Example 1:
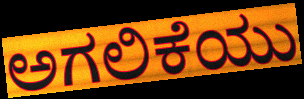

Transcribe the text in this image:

ಅಗಲಿಕೆಯು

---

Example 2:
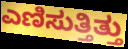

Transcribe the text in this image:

ಎಣಿಸುತ್ತಿತ್ತು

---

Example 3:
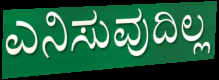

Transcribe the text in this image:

ಎನಿಸುವುದಿಲ್ಲ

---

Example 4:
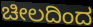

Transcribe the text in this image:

ಚೀಲದಿಂದ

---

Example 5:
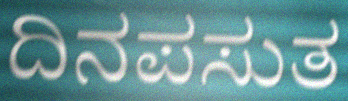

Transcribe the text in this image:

ದಿನಪಸುತ